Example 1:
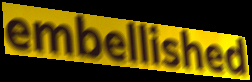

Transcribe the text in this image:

embellished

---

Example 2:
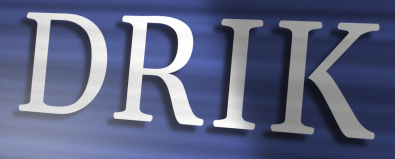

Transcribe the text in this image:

DRIK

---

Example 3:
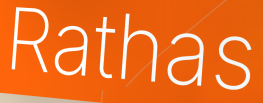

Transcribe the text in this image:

Rathas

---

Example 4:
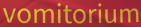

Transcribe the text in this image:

vomitorium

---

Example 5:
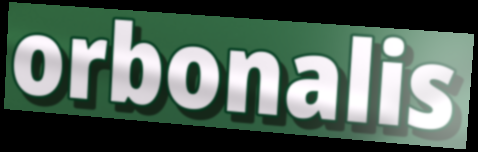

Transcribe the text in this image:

orbonalis